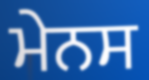
ਮੇਨਸ